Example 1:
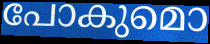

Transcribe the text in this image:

പോകുമൊ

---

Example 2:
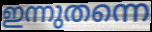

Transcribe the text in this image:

ഇന്നുതന്നെ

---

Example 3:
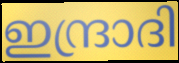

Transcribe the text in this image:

ഇന്ദ്രാദി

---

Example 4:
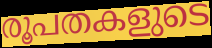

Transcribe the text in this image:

രൂപതകളുടെ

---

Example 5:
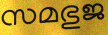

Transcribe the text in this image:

സമഭുജ